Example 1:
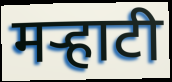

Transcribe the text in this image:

मर्‍हाटी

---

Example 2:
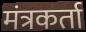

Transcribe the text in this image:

मंत्रकर्ता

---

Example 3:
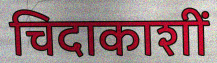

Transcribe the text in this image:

चिदाकाशीं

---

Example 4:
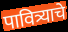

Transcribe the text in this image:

पावित्र्याचे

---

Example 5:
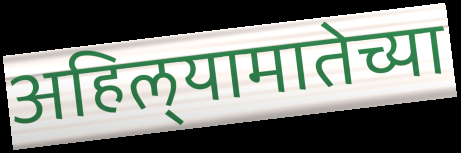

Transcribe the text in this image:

अहिल्यामातेच्या